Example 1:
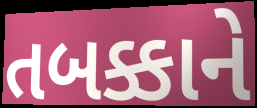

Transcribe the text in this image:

તબક્કાને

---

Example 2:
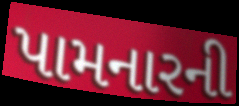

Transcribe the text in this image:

પામનારની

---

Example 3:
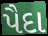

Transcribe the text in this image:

પૈદા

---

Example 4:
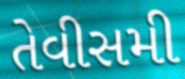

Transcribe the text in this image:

તેવીસમી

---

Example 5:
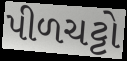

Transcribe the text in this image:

પીળચટ્ટો